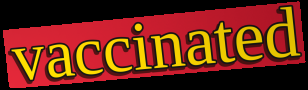
vaccinated